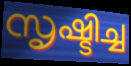
സൃഷ്ടിച്ച